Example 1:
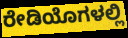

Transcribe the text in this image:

ರೇಡಿಯೊಗಳಲ್ಲಿ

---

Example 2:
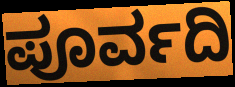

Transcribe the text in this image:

ಪೂರ್ವದಿ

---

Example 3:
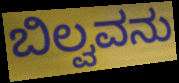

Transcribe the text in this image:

ಬಿಲ್ವವನು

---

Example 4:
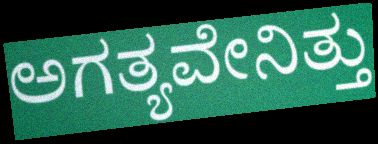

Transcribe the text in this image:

ಅಗತ್ಯವೇನಿತ್ತು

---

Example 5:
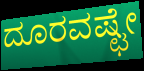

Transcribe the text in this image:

ದೂರವಷ್ಟೇ